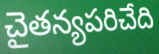
చైతన్యపరిచేది